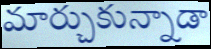
మార్చుకున్నాడా